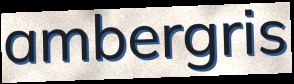
ambergris